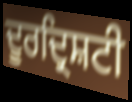
ਦੂਰਦ੍ਰਿਸ਼ਟੀ